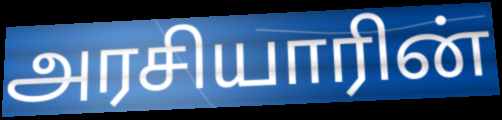
அரசியாரின்